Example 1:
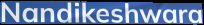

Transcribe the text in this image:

Nandikeshwara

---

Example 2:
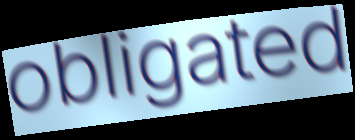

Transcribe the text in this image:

obligated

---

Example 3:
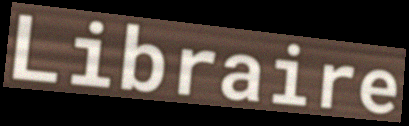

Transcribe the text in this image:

Libraire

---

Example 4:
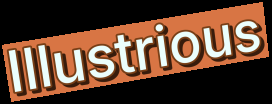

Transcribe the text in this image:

Illustrious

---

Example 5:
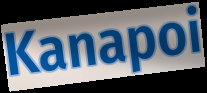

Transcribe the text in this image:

Kanapoi